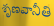
శృణవానీతి